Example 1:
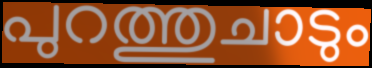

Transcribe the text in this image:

പുറത്തുചാടും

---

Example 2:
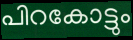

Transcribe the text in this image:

പിറകോട്ടും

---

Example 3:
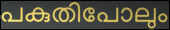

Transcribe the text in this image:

പകുതിപോലും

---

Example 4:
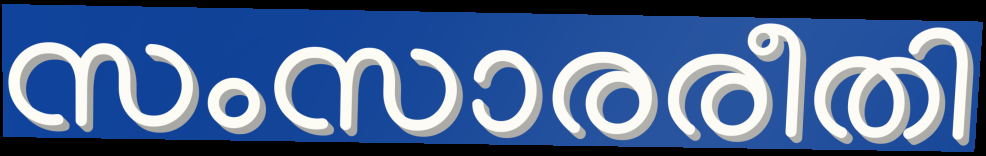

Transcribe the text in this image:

സംസാരരീതി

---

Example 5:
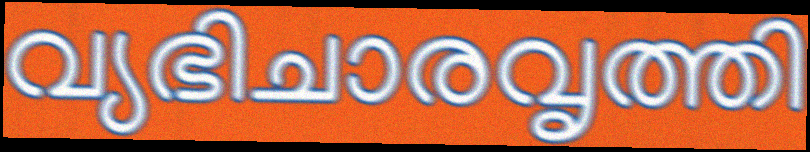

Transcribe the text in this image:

വ്യഭിചാരവൃത്തി